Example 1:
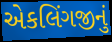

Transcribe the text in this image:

એકલિંગજીનું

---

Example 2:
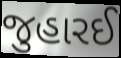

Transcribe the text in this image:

જુહારઈ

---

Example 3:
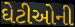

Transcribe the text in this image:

ઘેટીઓની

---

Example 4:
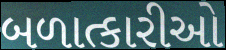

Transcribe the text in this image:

બળાત્કારીઓ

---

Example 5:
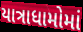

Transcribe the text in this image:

યાત્રાધામોમાં